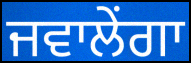
ਜਵਾਲੇਂਗਾ